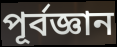
পূর্বজ্ঞান